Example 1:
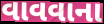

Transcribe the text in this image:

વાવવાના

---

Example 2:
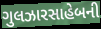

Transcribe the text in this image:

ગુલઝારસાહેબની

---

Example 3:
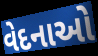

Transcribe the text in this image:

વેદનાઓ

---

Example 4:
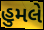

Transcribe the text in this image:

હુમલે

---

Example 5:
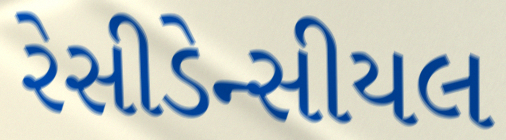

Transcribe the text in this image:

રેસીડેન્સીયલ